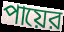
পায়ের